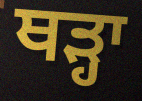
ਥੜ੍ਹਾ